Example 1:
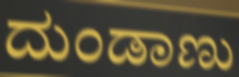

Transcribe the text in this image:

ದುಂಡಾಣು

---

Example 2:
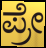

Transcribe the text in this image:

ಪ್ರೇ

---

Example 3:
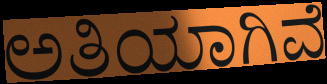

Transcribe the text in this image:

ಅತಿಯಾಗಿವೆ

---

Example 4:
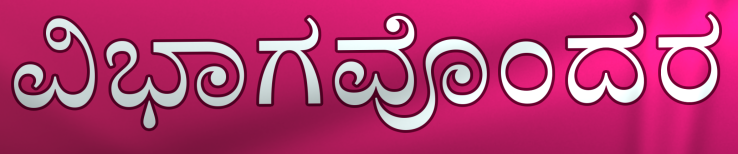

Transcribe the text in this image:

ವಿಭಾಗವೊಂದರ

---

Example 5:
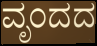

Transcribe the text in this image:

ವೃಂದದ